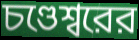
চণ্ডেশ্বরের